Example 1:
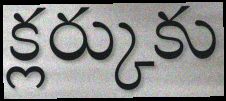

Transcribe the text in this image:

క్లర్కుకు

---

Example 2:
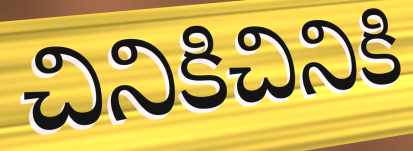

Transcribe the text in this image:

చినికిచినికి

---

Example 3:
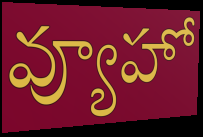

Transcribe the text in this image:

వ్యూహో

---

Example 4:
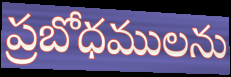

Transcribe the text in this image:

ప్రబోధములను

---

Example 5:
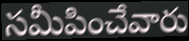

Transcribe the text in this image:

సమీపించేవారు